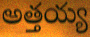
అత్తయ్య